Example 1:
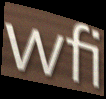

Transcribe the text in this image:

wfi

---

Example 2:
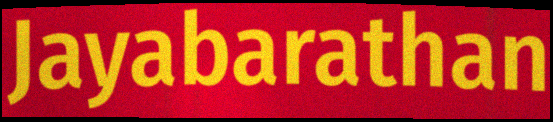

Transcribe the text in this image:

Jayabarathan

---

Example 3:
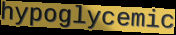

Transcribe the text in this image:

hypoglycemic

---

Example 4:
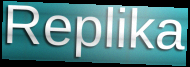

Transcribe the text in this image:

Replika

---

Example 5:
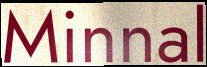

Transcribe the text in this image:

Minnal